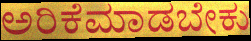
ಅರಿಕೆಮಾಡಬೇಕು